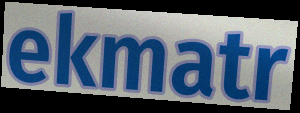
ekmatr